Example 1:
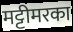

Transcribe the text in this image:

मट्टीमरका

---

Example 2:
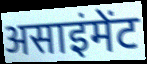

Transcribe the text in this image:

असाइंमेंट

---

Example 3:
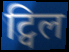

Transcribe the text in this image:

ट्विल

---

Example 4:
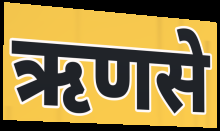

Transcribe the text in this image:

ऋणसे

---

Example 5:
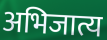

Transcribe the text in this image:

अभिजात्य